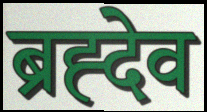
ब्रह्देव